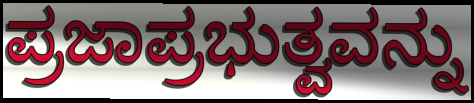
ಪ್ರಜಾಪ್ರಭುತ್ವವನ್ನು